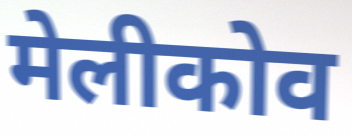
मेलीकोव